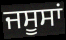
ਜਸੂਸਾਂ